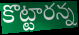
కొట్టారన్న